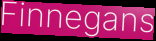
Finnegans